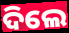
ଦିଲେ